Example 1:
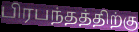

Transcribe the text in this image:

பிரபந்தத்திற்கு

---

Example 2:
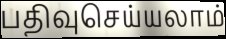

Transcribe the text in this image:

பதிவுசெய்யலாம்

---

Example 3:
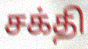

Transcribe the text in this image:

சக்தி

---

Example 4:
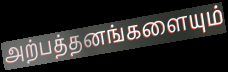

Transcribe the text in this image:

அற்பத்தனங்களையும்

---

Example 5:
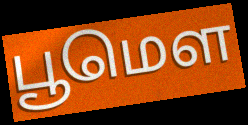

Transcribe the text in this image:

பூமௌ